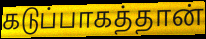
கடுப்பாகத்தான்